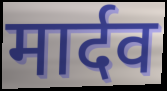
मार्दव